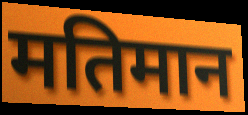
मतिमान